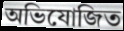
অভিযোজিত